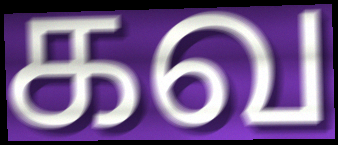
கவ